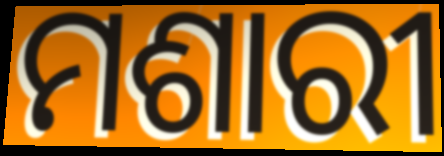
ମଶାରୀ